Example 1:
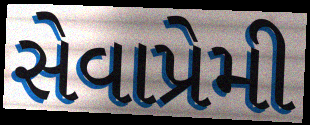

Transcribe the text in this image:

સેવાપ્રેમી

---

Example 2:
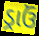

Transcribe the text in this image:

ડ્રાઉં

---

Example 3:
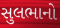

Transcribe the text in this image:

સુલભાનો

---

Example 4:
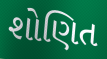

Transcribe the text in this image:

શોણિત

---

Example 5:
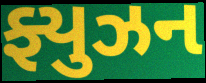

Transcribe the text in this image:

ફ્યુઝન